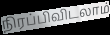
நிரப்பிவிடலாம்